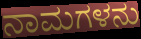
ನಾಮಗಳನು